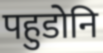
पहुडोनि